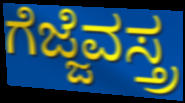
ಗೆಜ್ಜೆವಸ್ತ್ರ